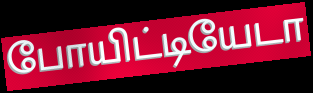
போயிட்டியேடா